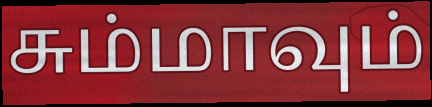
சும்மாவும்